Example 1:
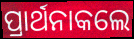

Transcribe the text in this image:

ପ୍ରାର୍ଥନାକଲେ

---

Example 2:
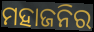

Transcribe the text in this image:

ମହାଜନିର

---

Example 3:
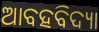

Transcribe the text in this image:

ଆବହବିଦ୍ୟା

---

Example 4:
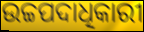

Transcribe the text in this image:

ଉଚ୍ଚପଦାଧିକାରୀ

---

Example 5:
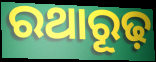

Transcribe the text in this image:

ରଥାରୂଢ଼